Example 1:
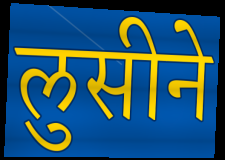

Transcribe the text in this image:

लुसीने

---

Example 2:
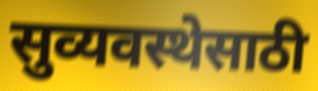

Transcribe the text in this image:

सुव्यवस्थेसाठी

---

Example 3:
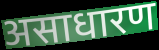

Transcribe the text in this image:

असाधारण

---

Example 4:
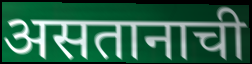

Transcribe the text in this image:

असतानाची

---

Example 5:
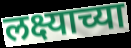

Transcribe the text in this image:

लक्ष्याच्या